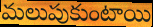
మలుపుకుంటాయి